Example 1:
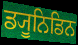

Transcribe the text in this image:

ਡ੍ਯੂਨਿਡਿਨ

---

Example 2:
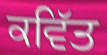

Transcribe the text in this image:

ਕਵਿੱਤ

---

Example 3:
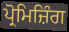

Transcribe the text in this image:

ਪ੍ਰੋਮਿਜ਼ਿੰਗ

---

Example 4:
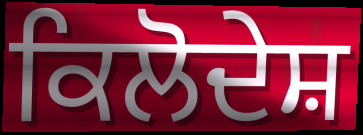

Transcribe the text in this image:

ਕਿਲੋਦੇਸ਼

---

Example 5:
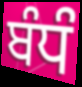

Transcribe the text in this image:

ਬੰਧੰ